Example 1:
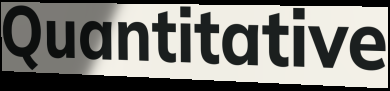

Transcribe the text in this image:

Quantitative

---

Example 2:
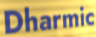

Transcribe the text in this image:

Dharmic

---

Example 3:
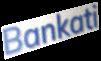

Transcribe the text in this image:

Bankati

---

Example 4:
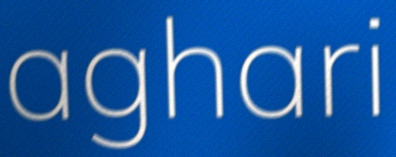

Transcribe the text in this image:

aghari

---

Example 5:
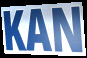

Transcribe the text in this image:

KAN